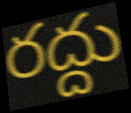
రద్దు